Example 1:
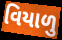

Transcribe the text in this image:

વિયાળુ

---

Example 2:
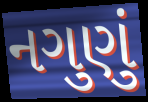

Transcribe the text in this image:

નગુણું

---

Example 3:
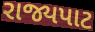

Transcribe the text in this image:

રાજ્યપાટ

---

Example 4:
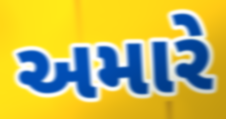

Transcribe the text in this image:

અમારે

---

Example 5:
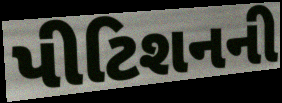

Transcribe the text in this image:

પીટિશનની